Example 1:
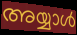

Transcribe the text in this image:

അയ്യാൾ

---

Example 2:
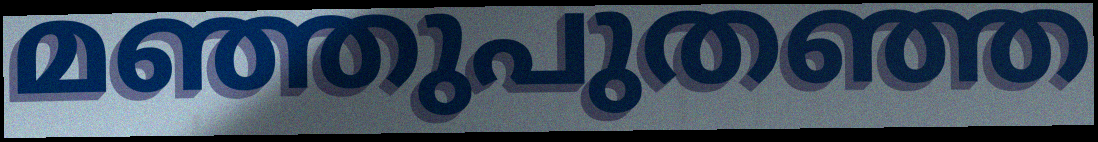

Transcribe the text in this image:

മഞ്ഞുപുതഞ്ഞ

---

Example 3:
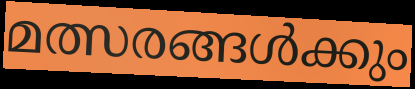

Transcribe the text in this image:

മത്സരങ്ങൾക്കും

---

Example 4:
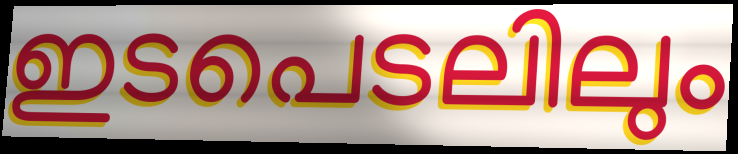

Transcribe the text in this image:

ഇടപെടലിലും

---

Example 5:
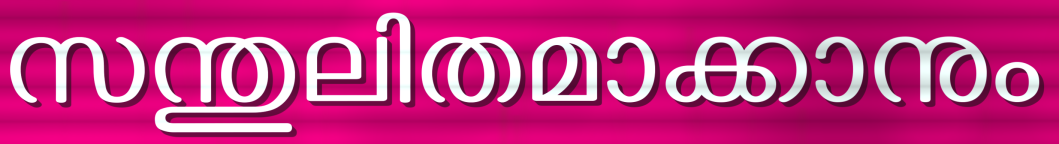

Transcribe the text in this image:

സന്തുലിതമാക്കാനും